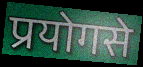
प्रयोगसे